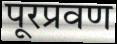
पूरप्रवण